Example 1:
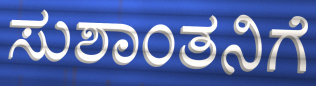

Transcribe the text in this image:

ಸುಶಾಂತನಿಗೆ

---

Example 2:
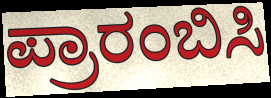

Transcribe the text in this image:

ಪ್ರಾರಂಬಿಸಿ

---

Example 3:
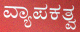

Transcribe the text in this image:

ವ್ಯಾಪಕತ್ವ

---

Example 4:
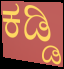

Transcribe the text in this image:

ಕಡ್ಡಿ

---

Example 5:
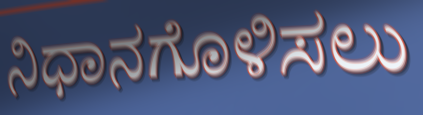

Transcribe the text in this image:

ನಿಧಾನಗೊಳಿಸಲು